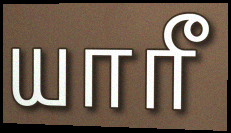
யாரீ